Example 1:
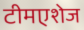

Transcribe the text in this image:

टीमएशेज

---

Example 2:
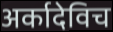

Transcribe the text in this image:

अर्कादेविच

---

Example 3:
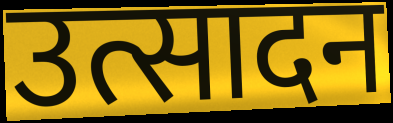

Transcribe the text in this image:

उत्सादन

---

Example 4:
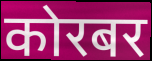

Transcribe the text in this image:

कोरबर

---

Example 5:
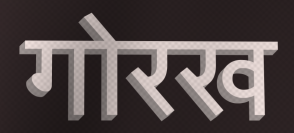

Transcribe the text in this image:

गोरख